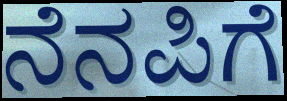
ನೆನಪಿಗೆ